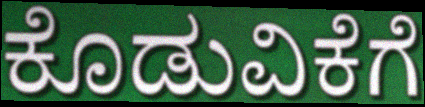
ಕೊಡುವಿಕೆಗೆ